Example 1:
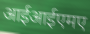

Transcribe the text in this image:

आईआईएमए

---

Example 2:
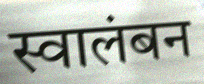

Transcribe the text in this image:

स्वालंबन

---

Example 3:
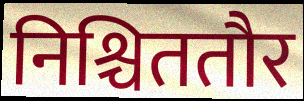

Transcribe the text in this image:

निश्चिततौर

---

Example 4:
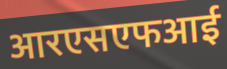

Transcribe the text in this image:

आरएसएफआई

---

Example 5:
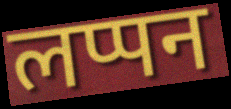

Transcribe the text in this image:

लप्पन